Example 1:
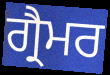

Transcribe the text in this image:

ਗ੍ਰੈਮਰ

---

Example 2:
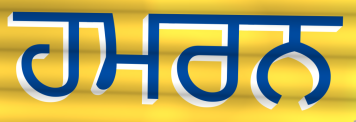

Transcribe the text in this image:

ਹਮਰਨ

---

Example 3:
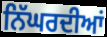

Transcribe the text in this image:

ਨਿੱਘਰਦੀਆਂ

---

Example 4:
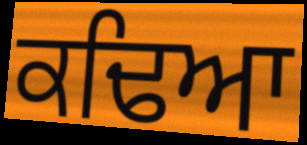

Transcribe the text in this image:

ਕਢਿਆ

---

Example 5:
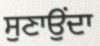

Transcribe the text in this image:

ਸੁਣਾਉਂਦਾ